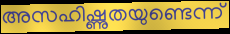
അസഹിഷ്ണുതയുണ്ടെന്ന്